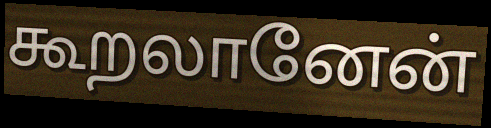
கூறலானேன்